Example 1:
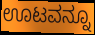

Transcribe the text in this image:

ಊಟವನ್ನೂ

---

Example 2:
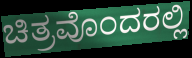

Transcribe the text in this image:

ಚಿತ್ರವೊಂದರಲ್ಲಿ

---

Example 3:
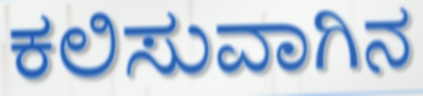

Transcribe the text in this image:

ಕಲಿಸುವಾಗಿನ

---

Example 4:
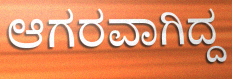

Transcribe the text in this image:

ಆಗರವಾಗಿದ್ದ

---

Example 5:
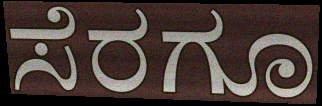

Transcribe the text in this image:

ಸೆರಗೂ